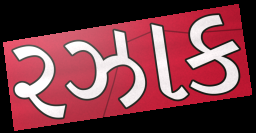
રઝાક